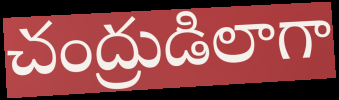
చంద్రుడిలాగా